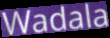
Wadala